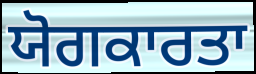
ਯੋਗਕਾਰਤਾ